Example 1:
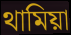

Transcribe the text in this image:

থামিয়া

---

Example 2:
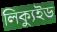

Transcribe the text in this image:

লিক্যুইড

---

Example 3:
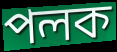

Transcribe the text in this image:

পলক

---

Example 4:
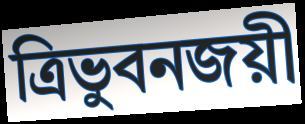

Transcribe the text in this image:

ত্রিভুবনজয়ী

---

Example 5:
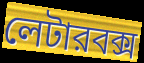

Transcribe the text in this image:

লেটারবক্স